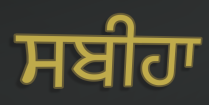
ਸਬੀਹਾ